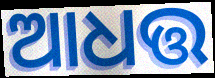
ଆଧତ୍ତ